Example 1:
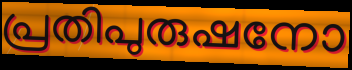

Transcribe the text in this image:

പ്രതിപുരുഷനോ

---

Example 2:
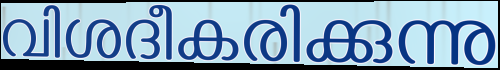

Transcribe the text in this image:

വിശദീകരിക്കുന്നു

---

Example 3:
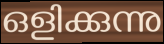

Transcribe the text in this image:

ഒളിക്കുന്നു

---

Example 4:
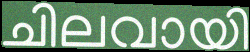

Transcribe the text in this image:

ചിലവായി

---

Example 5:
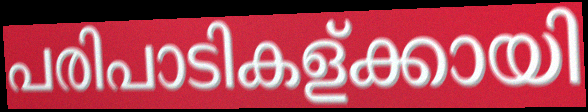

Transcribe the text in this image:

പരിപാടികള്ക്കായി